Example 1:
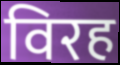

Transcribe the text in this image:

विरह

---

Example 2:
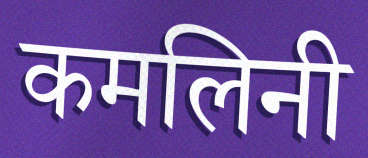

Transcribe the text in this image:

कमलिनी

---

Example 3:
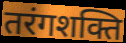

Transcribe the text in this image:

तरंगशक्ति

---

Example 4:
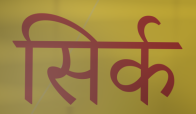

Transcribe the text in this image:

सिर्क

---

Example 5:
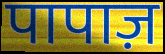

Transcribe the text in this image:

पापाज़